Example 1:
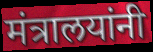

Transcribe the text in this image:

मंत्रालयांनी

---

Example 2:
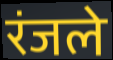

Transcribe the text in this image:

रंजले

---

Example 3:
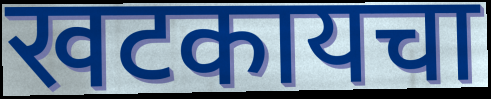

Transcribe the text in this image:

खटकायचा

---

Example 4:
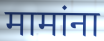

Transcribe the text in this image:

मामांना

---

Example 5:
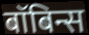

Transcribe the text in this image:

बॉबिन्स